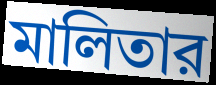
মালিতার